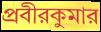
প্রবীরকুমার